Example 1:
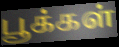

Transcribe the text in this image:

பூக்கள்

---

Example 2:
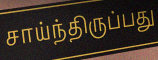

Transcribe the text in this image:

சாய்ந்திருப்பது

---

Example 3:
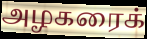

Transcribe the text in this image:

அழகரைக்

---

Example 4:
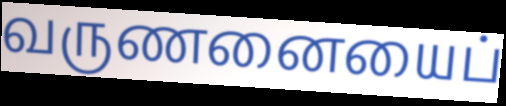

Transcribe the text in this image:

வருணனையைப்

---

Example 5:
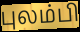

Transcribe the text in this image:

புலம்பி